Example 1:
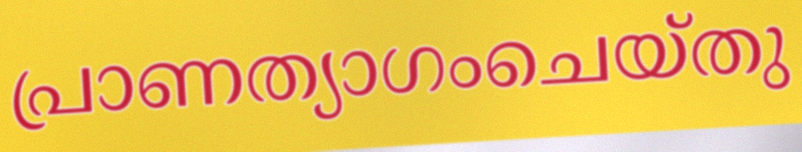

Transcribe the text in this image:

പ്രാണത്യാഗംചെയ്തു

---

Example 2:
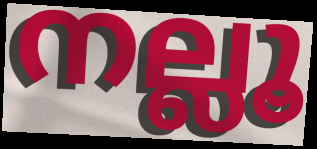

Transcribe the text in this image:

നല്ലൂ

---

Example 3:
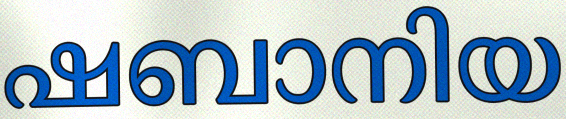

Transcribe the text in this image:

ഷബാനിയ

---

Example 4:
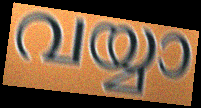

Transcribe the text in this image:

വയ്യാ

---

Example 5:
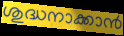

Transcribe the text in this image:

ശുദ്ധനാക്കാൻ